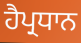
ਹੈਪ੍ਰਧਾਨ